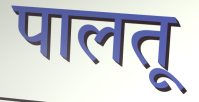
पालतू